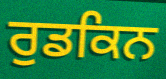
ਰੁਡਕਿਨ